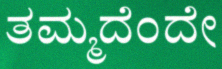
ತಮ್ಮದೆಂದೇ